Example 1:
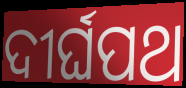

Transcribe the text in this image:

ଦୀର୍ଘପଥ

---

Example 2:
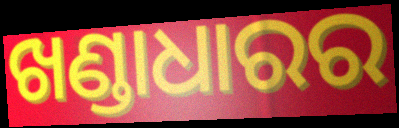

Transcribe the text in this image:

ଖଣ୍ଡାଧାରର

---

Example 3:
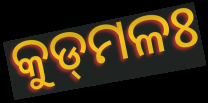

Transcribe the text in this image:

କୁଡ୍‌ମଳଃ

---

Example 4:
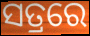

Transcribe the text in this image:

ସତ୍ରରେ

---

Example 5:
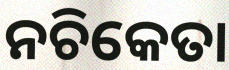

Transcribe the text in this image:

ନଚିକେତା